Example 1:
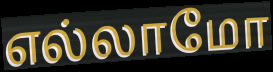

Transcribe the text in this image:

எல்லாமோ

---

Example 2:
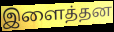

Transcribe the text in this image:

இளைத்தன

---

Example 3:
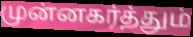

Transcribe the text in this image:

முன்னகர்த்தும்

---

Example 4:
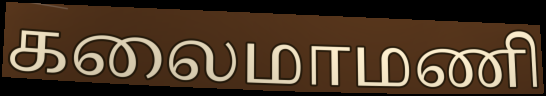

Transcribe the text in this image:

கலைமாமணி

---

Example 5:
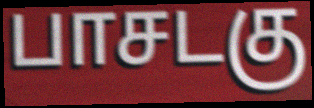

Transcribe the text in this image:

பாசடகு